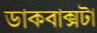
ডাকবাক্সটা